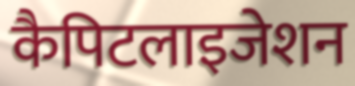
कैपिटलाइजेशन